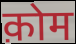
क़ोम